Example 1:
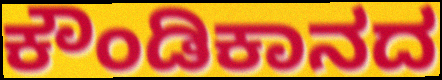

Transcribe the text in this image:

ಕೌಂಡಿಕಾನದ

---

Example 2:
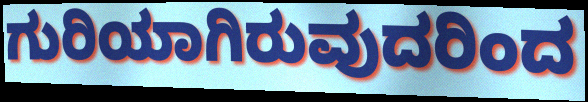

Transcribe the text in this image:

ಗುರಿಯಾಗಿರುವುದರಿಂದ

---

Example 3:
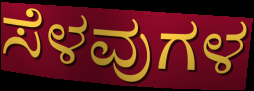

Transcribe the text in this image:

ಸೆಳವುಗಳ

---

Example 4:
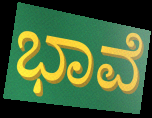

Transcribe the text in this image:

ಭಾವೆ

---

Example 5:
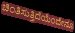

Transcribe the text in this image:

ಚಿಂತಿಸುತ್ತಿದೆಯೆಂದೇನೂ